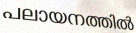
പലായനത്തിൽ